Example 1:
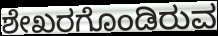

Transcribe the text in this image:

ಶೇಖರಗೊಂಡಿರುವ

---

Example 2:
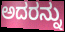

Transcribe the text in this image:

ಅದರನ್ನು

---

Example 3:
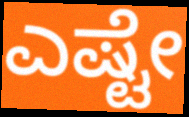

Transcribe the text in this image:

ಎಷ್ಟೇ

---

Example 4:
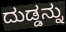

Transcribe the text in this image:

ದುಡ್ಡನ್ನು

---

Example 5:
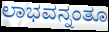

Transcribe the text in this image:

ಲಾಭವನ್ನಂತೂ